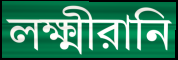
লক্ষ্মীরানি